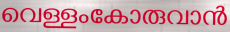
വെള്ളംകോരുവാൻ